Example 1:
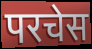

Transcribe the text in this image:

परचेस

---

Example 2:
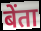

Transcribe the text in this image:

बेंता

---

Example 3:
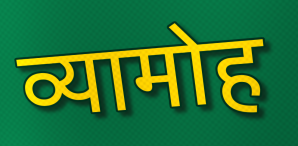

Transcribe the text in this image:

व्यामोह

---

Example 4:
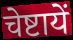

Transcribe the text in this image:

चेष्टायें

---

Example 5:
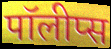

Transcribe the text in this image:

पॉलीप्स